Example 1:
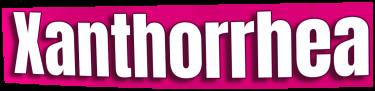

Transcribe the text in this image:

Xanthorrhea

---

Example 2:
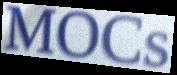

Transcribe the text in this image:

MOCs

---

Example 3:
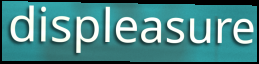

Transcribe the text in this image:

displeasure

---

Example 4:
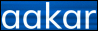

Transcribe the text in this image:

aakar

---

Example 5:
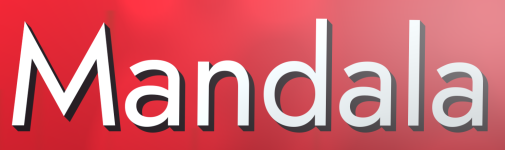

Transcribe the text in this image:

Mandala